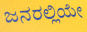
ಜನರಲ್ಲಿಯೇ